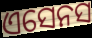
ଏସେନସ